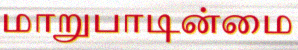
மாறுபாடின்மை